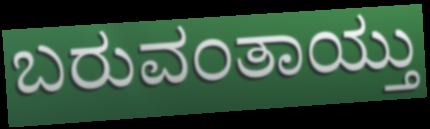
ಬರುವಂತಾಯ್ತು